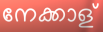
നേക്കാള്